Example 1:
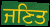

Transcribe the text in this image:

ਜਣਿਤ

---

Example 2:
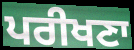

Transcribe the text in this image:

ਪਰੀਖਣਾ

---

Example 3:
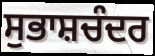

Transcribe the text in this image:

ਸੁਭਾਸ਼ਚੰਦਰ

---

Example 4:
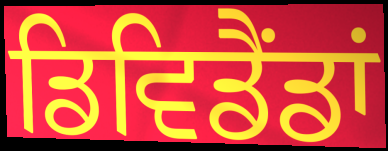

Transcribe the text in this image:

ਡਿਵਿਡੈਂਡਾਂ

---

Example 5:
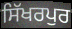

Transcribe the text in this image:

ਸਿੱਖਰਪੁਰ